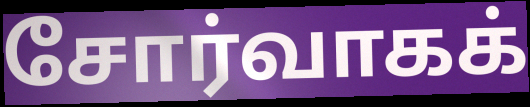
சோர்வாகக்